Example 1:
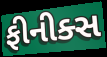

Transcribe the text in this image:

ફીનીક્સ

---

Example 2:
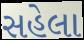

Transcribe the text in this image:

સહેલા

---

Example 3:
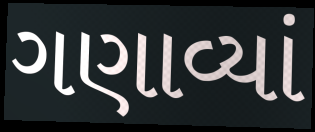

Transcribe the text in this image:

ગણાવ્યાં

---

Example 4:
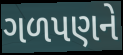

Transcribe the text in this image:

ગળપણને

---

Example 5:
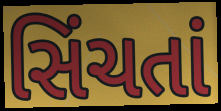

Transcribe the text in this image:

સિંચતાં